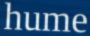
hume